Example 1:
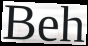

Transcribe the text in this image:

Beh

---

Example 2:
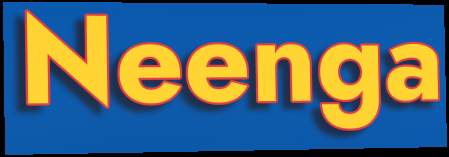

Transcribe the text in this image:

Neenga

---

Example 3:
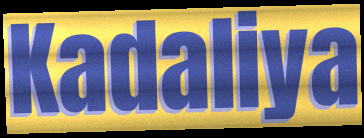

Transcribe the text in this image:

Kadaliya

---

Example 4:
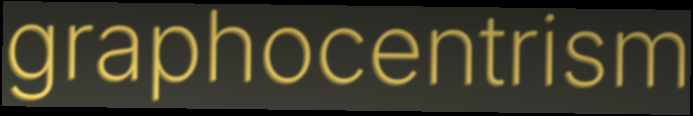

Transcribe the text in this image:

graphocentrism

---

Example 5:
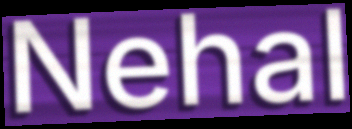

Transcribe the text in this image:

Nehal